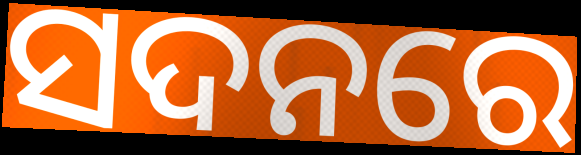
ସଦନରେ